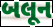
બલૂન